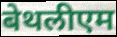
बेथलीएम